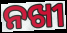
ନଖୀ